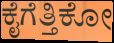
ಕೈಗೆತ್ತಿಕೋ